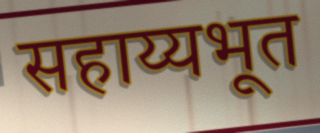
सहाय्यभूत